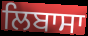
ਲਿਬਾਸਾ